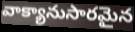
వాక్యానుసారమైన